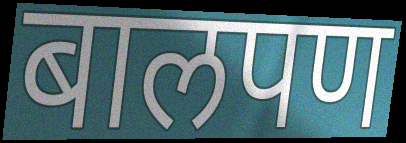
बालपण